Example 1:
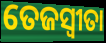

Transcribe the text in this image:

ତେଜସ୍ଵୀତା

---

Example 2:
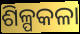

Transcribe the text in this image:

ଶିଳ୍ପକଳା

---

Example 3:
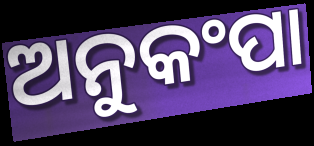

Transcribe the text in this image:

ଅନୁକଂପା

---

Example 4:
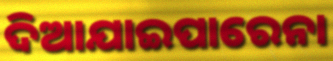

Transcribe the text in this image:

ଦିଆଯାଇପାରେନା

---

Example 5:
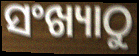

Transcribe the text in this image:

ସଂଖ୍ୟାଠୁ